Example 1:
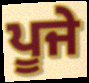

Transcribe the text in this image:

ਪੂਜੇ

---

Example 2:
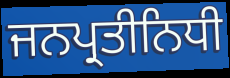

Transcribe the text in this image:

ਜਨਪ੍ਰਤੀਨਿਧੀ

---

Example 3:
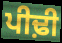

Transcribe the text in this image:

ਪੀਢ਼ੀ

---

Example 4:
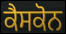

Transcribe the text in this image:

ਕੈਸਕੋਨ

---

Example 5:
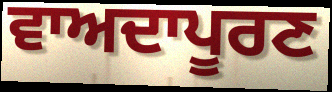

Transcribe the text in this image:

ਵਾਅਦਾਪੂਰਣ